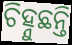
ଚିହ୍ନୁଛନ୍ତି